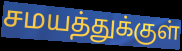
சமயத்துக்குள்